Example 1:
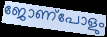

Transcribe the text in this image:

ജോണ്പോളും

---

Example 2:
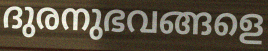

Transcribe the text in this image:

ദുരനുഭവങ്ങളെ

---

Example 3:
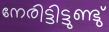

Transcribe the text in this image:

നേരിട്ടിട്ടുണ്ടു്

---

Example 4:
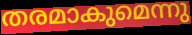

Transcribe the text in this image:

തരമാകുമെന്നു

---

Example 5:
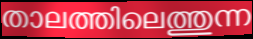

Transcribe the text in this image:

താലത്തിലെത്തുന്ന